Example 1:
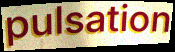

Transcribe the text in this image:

pulsation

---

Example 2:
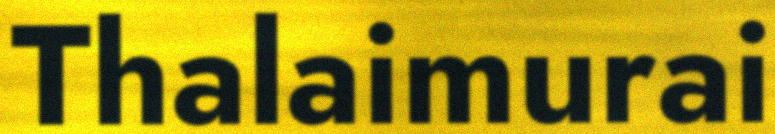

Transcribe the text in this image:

Thalaimurai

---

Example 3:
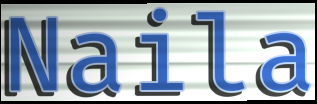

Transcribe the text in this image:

Naila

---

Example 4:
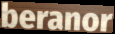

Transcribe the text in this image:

beranor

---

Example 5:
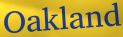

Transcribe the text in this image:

Oakland